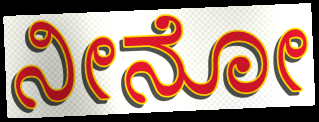
ನೀನೋ